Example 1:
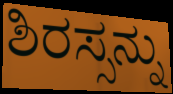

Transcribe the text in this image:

ಶಿರಸ್ಸನ್ನು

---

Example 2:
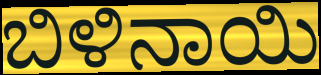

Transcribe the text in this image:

ಬಿಳಿನಾಯಿ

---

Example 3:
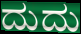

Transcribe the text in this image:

ದುದು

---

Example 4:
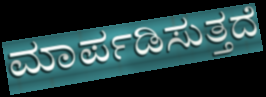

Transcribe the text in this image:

ಮಾರ್ಪಡಿಸುತ್ತದೆ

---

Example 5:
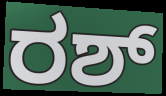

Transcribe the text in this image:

ರಶ್